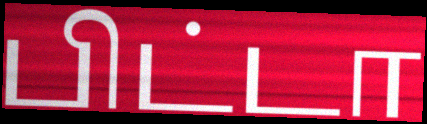
பிட்டா